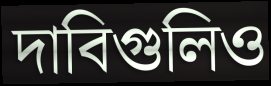
দাবিগুলিও